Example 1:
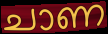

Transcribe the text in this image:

ചാണ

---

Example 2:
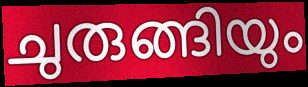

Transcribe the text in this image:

ചുരുങ്ങിയും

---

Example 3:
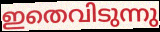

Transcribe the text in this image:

ഇതെവിടുന്നു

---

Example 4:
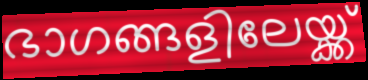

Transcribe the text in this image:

ഭാഗങ്ങളിലേയ്ക്ക്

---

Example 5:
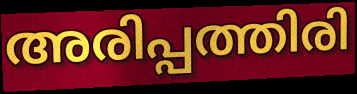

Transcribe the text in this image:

അരിപ്പത്തിരി